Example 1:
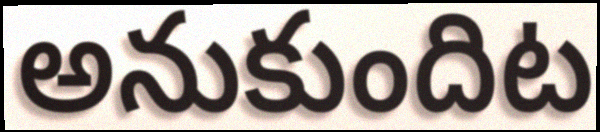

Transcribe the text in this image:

అనుకుందిట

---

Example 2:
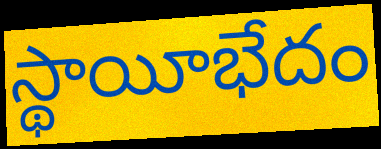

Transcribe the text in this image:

స్థాయీభేదం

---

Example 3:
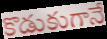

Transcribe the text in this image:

కొడుకుగానే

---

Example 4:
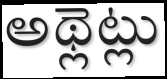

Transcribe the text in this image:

అథ్లెట్లు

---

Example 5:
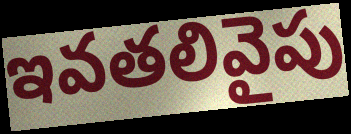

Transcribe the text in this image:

ఇవతలివైపు